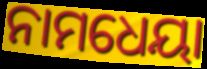
ନାମଧେୟା